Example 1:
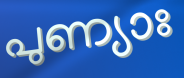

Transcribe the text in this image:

പുണ്യാഃ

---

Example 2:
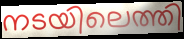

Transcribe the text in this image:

നടയിലെത്തി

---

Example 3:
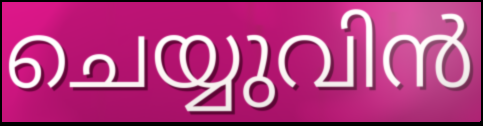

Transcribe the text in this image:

ചെയ്യുവിൻ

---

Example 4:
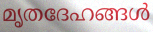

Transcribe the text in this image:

മൃതദേഹങ്ങൾ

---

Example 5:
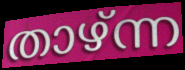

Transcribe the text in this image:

താഴ്ന്ന